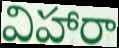
విహారా